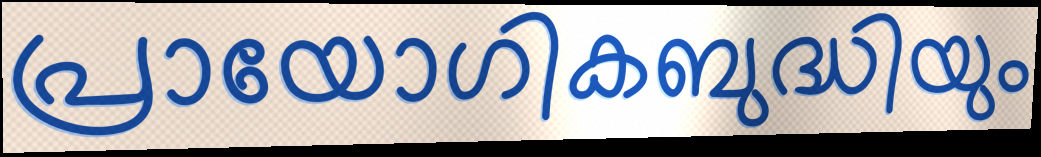
പ്രായോഗികബുദ്ധിയും